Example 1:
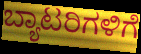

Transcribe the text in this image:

ಬ್ಯಾಟರಿಗಳಿಗೆ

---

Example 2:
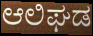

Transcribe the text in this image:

ಆಲಿಘಡ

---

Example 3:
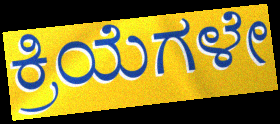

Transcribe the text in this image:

ಕ್ರಿಯೆಗಳೇ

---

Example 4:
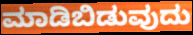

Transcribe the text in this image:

ಮಾಡಿಬಿಡುವುದು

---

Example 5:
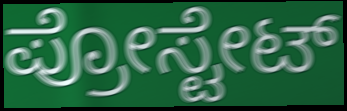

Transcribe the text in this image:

ಪ್ರೋಸ್ಟೇಟ್